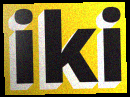
iki